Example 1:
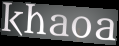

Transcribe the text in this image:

khaoa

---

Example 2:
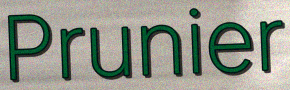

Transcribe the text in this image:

Prunier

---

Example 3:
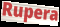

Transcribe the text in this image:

Rupera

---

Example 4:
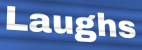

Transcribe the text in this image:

Laughs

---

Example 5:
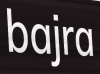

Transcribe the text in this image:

bajra